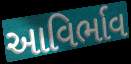
આવિર્ભાવ